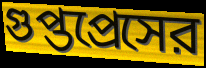
গুপ্তপ্রেসের